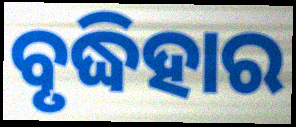
ବୃଦ୍ଧିହାର